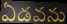
ఏడవను